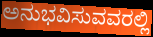
ಅನುಭವಿಸುವವರಲ್ಲಿ